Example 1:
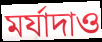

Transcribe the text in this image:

মর্যাদাও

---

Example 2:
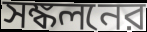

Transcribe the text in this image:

সঙ্কলনের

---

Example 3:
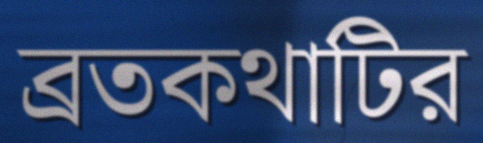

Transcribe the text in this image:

ব্রতকথাটির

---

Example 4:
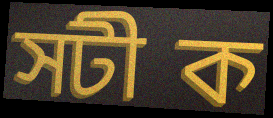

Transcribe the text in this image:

সটীক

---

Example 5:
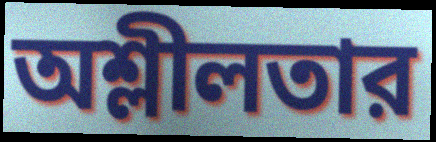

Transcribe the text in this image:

অশ্লীলতার